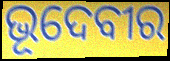
ଭୂଦେବୀର